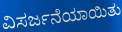
ವಿಸರ್ಜನೆಯಾಯಿತು